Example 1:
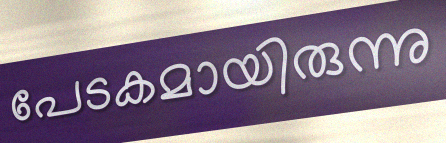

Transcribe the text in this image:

പേടകമായിരുന്നു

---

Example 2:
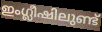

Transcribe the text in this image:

ഇംഗ്ലീഷിലുണ്ട്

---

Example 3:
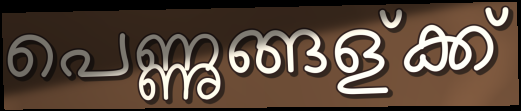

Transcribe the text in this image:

പെണ്ണുങ്ങള്ക്ക്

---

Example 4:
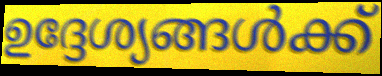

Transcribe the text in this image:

ഉദ്ദേശ്യങ്ങൾക്ക്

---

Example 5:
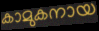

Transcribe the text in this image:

കാമുകനായ